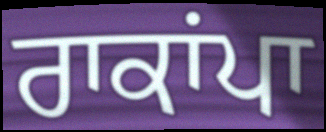
ਰਾਕਾਂਪਾ